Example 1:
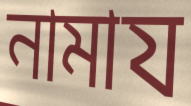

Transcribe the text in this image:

নামায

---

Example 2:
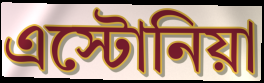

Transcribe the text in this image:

এস্টোনিয়া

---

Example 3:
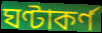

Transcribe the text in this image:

ঘণ্টাকর্ণ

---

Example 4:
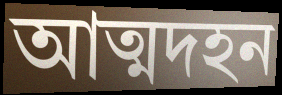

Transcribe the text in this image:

আত্মদহন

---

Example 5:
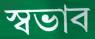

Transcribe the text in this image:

স্বভাব